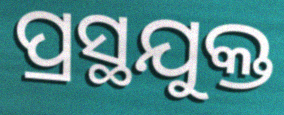
ପ୍ରସ୍ଥଯୁକ୍ତ